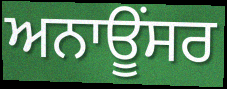
ਅਨਾਊਂਸਰ